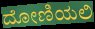
ದೋಣಿಯಲಿ